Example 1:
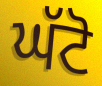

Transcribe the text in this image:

ਘੱਟੋ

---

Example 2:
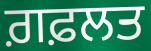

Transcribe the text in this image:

ਗ਼ਫ਼ਲਤ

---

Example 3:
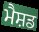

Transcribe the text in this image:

ਮੈਸ਼ਡ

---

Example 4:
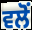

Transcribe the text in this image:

ਵਲੋਂ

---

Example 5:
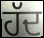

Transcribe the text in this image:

ਹੱਦ